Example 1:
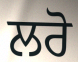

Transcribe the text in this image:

ਲਰੋ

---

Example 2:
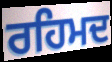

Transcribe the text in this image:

ਰਹਿਮਦ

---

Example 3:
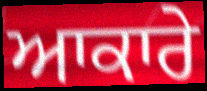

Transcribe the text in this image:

ਆਕਾਰੇ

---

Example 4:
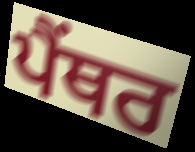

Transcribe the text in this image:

ਪੈੰਥਰ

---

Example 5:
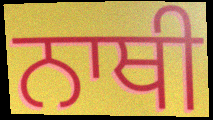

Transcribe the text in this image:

ਨਾਥੀ